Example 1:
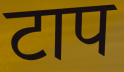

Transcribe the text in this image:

टाप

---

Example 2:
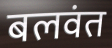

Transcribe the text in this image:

बलवंत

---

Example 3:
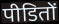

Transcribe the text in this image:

पीडितों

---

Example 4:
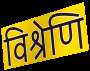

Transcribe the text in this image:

विश्रेणि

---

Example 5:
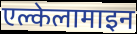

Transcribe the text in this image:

एल्केलामाइन